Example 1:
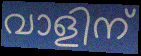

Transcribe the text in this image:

വാളിന്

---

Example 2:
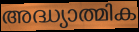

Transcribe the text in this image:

അദ്ധ്യാത്മിക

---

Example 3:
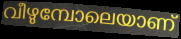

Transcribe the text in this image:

വീഴുമ്പോലെയാണ്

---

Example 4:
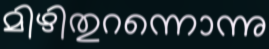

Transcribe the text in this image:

മിഴിതുറന്നൊന്നു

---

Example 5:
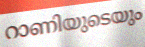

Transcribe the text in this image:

റാണിയുടെയും